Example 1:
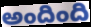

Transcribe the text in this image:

అందింది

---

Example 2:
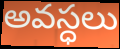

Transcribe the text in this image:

అవస్ధలు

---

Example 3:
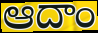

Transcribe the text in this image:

ఆదాం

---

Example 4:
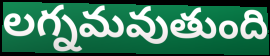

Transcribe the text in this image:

లగ్నమవుతుంది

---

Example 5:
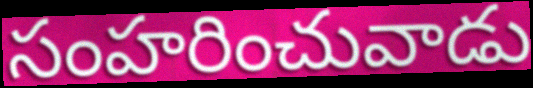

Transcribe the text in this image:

సంహరించువాడు